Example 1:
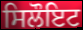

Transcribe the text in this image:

ਸਿਲੌਇਟ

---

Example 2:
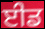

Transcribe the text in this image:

ਈਡ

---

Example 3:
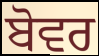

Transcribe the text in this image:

ਬੋਵਰ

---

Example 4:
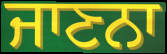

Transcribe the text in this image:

ਜਾਣਨਾ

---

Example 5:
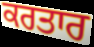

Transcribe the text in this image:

ਕਰਤਾਰ